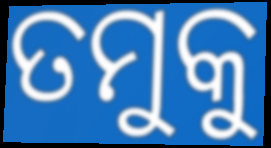
ତମୁକୁ